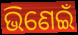
ଭିଣେଇଁ